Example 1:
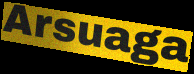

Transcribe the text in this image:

Arsuaga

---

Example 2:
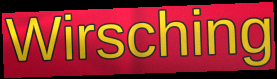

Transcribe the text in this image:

Wirsching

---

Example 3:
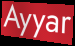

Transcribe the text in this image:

Ayyar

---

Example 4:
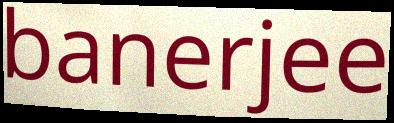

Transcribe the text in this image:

banerjee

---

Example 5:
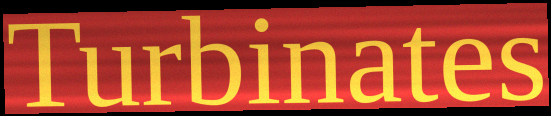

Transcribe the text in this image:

Turbinates